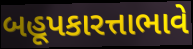
બહૂપકારત્તાભાવે